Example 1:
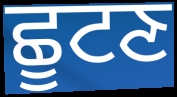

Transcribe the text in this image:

ਛੂਟਣ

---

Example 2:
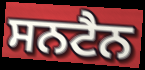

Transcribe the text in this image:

ਸਨਟੈਨ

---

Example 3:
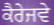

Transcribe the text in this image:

ਕੈਰੇਜਵੇ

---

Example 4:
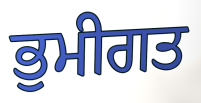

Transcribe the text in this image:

ਭੁਮੀਗਤ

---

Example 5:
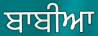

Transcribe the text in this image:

ਬਾਬੀਆ